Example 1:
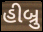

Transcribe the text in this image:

હીબ્રુ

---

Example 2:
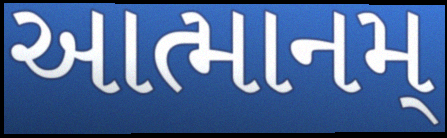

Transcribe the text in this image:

આત્માનમ્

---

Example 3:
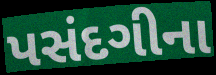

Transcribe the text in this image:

પસંદગીના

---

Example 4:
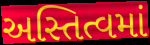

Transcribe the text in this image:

અસ્તિત્વમાં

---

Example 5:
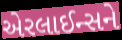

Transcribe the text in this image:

એરલાઈન્સને